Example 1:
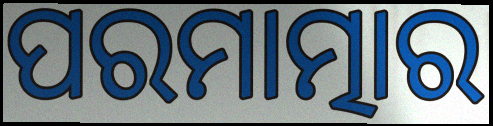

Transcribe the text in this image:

ପରମାତ୍ମାର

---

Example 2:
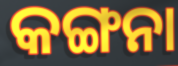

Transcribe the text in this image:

କଙ୍ଗନା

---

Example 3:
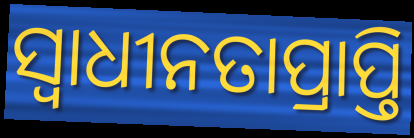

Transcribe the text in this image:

ସ୍ଵାଧୀନତାପ୍ରାପ୍ତି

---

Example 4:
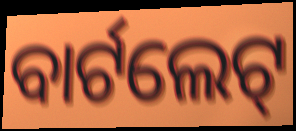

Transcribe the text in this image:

ବାର୍ଟଲେଟ୍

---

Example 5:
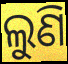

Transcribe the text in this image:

ଲୁଣି